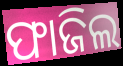
ଫାଜିଲ